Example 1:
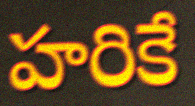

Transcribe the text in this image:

హరికే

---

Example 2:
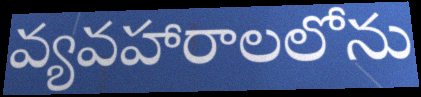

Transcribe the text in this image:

వ్యవహారాలలోను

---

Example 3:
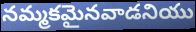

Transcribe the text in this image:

నమ్మకమైనవాడనియు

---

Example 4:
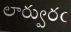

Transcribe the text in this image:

లార్వురఁ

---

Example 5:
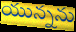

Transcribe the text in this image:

యున్నను